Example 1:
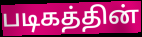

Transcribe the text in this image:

படிகத்தின்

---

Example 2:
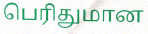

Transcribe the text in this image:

பெரிதுமான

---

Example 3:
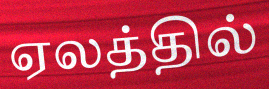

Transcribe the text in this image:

ஏலத்தில்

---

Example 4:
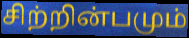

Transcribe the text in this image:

சிற்றின்பமும்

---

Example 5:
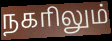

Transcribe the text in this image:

நகரிலும்